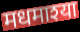
मधमाश्‍या